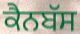
ਕੈਨਬੱਸ